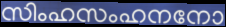
സിംഹസംഹനനോ